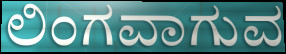
ಲಿಂಗವಾಗುವ